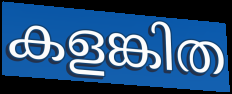
കളങ്കിത